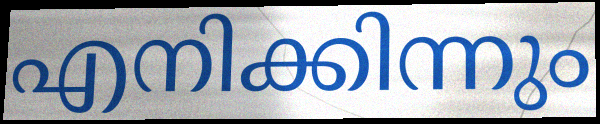
എനിക്കിന്നും